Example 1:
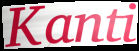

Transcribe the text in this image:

Kanti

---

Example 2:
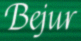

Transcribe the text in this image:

Bejur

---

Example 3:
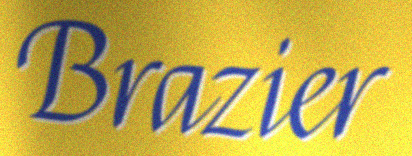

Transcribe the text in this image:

Brazier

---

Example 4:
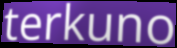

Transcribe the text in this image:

terkuno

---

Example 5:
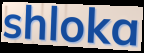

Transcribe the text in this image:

shloka